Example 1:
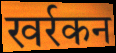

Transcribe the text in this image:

खर्रकन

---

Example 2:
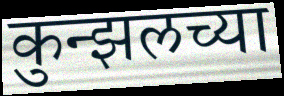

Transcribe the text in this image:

कुन्झलच्या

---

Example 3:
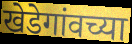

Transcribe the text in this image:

खेडेगांवच्या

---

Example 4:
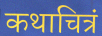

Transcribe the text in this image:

कथाचित्रं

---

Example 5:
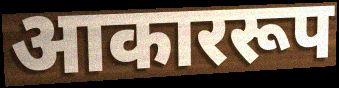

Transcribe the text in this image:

आकाररूप